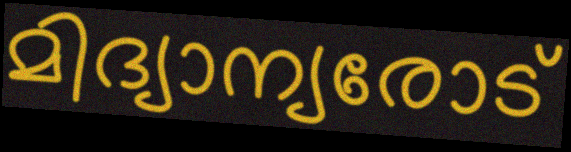
മിദ്യാന്യരോട്